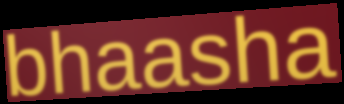
bhaasha